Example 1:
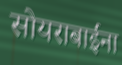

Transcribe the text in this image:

सोयराबाईंना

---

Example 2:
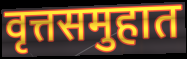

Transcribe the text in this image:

वृत्तसमुहात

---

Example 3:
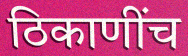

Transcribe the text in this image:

ठिकाणींच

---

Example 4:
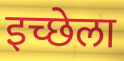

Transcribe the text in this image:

इच्छेला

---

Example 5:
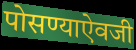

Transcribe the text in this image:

पोसण्याऐवजी